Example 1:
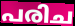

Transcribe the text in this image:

പരിച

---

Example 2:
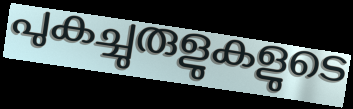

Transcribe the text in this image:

പുകച്ചുരുളുകളുടെ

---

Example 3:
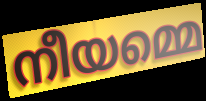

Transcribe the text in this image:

നീയമ്മെ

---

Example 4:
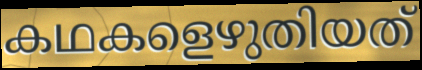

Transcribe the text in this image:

കഥകളെഴുതിയത്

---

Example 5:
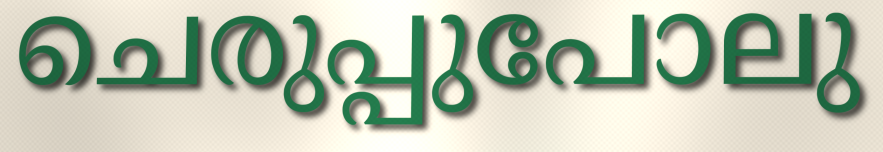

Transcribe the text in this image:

ചെരുപ്പുപോലു